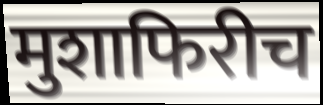
मुशाफिरीच